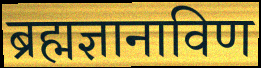
ब्रह्मज्ञानाविण